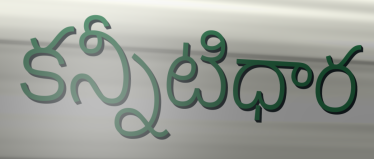
కన్నీటిధార